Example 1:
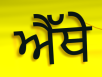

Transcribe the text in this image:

ਐੱਥੇ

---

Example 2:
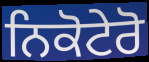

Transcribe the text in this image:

ਨਿਕੋਟੇਰੋ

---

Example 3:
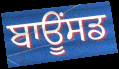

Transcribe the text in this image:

ਬਾਊਂਸਡ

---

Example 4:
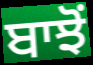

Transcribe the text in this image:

ਬਾਝੋਂ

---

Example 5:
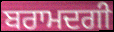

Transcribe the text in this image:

ਬਰਾਮਦਗੀ